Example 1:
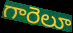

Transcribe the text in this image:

గారెలూ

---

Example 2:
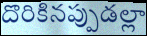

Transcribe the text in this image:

దొరికినప్పుడల్లా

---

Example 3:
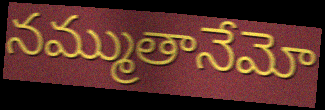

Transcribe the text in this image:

నమ్ముతానేమో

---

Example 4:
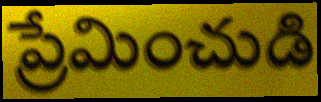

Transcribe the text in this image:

ప్రేమించుడి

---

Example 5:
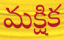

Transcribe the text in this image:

మక్షిక